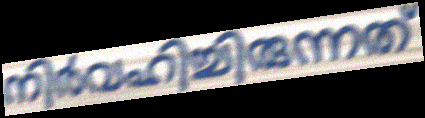
നിർവഹിച്ചിരുന്നത്